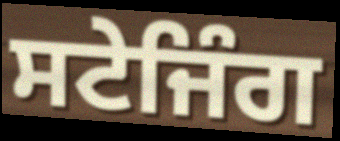
ਸਟੇਜਿੰਗ